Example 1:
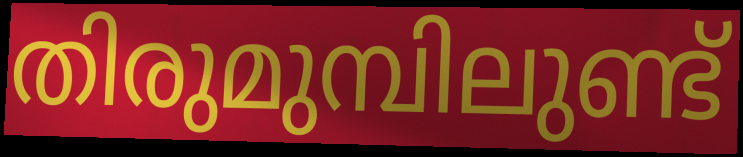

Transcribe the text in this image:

തിരുമുമ്പിലുണ്ട്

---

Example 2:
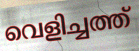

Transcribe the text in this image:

വെളിച്ചത്ത്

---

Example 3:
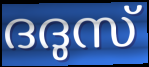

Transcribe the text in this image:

ദദുസ്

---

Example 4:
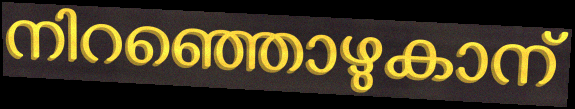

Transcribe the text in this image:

നിറഞ്ഞൊഴുകാന്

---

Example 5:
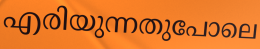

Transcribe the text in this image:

എരിയുന്നതുപോലെ